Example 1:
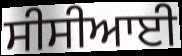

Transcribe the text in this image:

ਸੀਸੀਆਈ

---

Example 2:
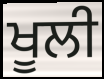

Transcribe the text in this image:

ਖੂਲੀ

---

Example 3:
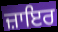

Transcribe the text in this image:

ਜ਼ਾਇਰ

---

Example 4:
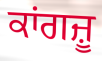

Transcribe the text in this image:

ਕਾਂਗਜ਼ੂ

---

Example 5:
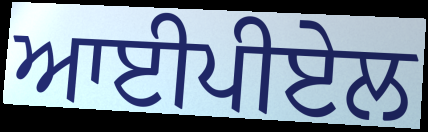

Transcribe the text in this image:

ਆਈਪੀਏਲ